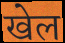
खेल